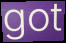
got